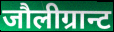
जौलीग्रान्ट